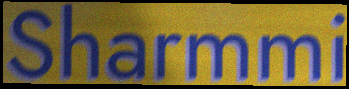
Sharmmi